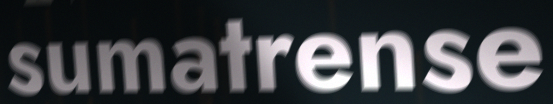
sumatrense